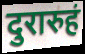
दुरारुहं